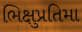
ભિક્ષુપ્રતિમા